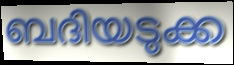
ബദിയടുക്ക